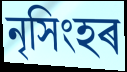
নৃসিংহৰ